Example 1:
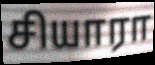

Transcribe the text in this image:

சியாரா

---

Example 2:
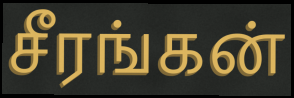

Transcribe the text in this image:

சீரங்கன்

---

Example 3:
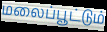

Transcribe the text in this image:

மலைப்பூட்டும்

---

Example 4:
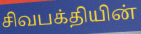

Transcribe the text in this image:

சிவபக்தியின்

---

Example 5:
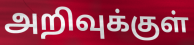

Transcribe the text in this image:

அறிவுக்குள்